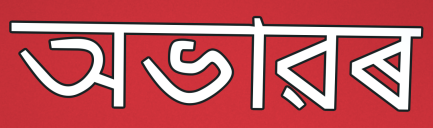
অভাৱৰ